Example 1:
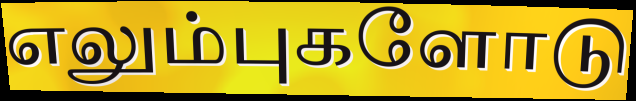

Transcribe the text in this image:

எலும்புகளோடு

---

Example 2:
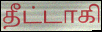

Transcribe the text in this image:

தீட்டாகி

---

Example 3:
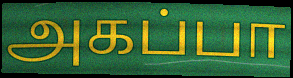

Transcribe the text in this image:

அகப்பா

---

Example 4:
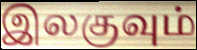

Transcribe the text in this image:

இலகுவும்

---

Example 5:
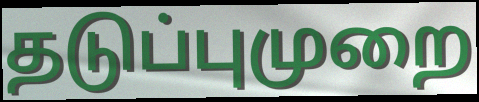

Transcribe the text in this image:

தடுப்புமுறை